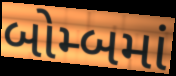
બોમ્બમાં